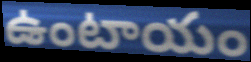
ఉంటాయం